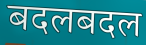
बदलबदल